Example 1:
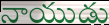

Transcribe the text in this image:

నాయుడు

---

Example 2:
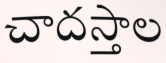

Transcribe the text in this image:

చాదస్తాల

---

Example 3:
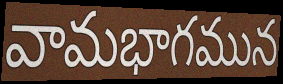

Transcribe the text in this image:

వామభాగమున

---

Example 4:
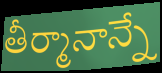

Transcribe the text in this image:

తీర్మానాన్నే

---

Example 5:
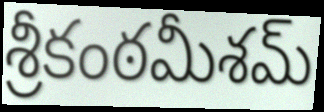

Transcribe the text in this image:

శ్రీకంఠమీశమ్